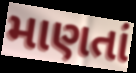
માણતાં